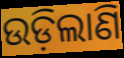
ଉଡ଼ିଲାଣି